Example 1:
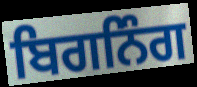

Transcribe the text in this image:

ਬਿਗਨਿੰਗ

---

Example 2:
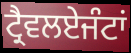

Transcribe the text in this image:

ਟ੍ਰੈਵਲਏਜੰਟਾਂ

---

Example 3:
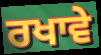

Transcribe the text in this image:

ਰਖਾਵੇ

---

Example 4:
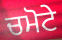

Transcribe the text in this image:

ਚਮੋਟੇ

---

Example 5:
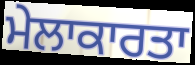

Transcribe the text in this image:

ਮੇਲਾਕਾਰਤਾ